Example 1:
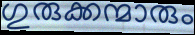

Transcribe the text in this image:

ഗുരുക്കന്മാരും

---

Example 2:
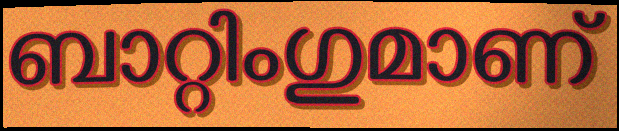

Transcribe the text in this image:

ബാറ്റിംഗുമാണ്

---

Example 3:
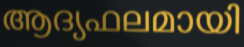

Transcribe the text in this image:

ആദ്യഫലമായി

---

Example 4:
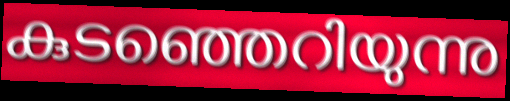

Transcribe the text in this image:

കുടഞ്ഞെറിയുന്നു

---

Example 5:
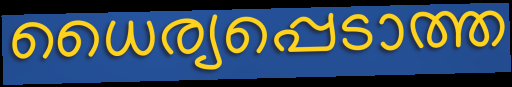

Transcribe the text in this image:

ധൈര്യപ്പെടാത്ത